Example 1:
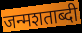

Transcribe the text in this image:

जन्मशताब्दी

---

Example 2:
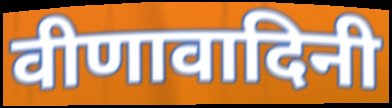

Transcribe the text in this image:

वीणावादिनी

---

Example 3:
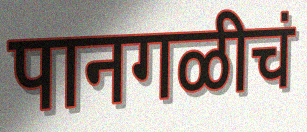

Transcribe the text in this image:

पानगळीचं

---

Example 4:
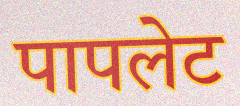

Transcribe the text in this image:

पापलेट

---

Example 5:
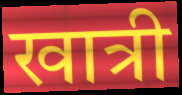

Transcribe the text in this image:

खात्री